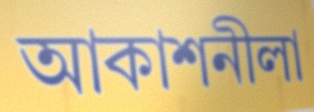
আকাশনীলা